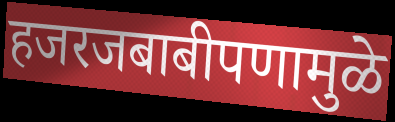
हजरजबाबीपणामुळे